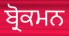
ਬ੍ਰੋਕਮਨ